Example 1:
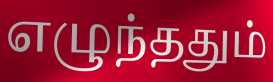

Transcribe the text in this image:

எழுந்ததும்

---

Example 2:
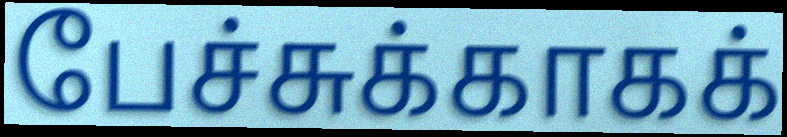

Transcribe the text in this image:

பேச்சுக்காகக்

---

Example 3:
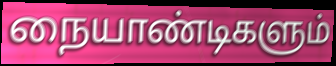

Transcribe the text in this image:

நையாண்டிகளும்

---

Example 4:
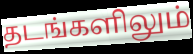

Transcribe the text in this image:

தடங்களிலும்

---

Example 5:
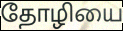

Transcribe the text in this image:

தோழியை